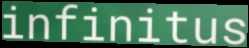
infinitus